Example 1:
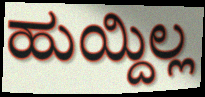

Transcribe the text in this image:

ಹುಯ್ದಿಲ್ಲ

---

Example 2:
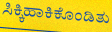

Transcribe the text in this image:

ಸಿಕ್ಕಿಹಾಕಿಕೊಂಡಿತು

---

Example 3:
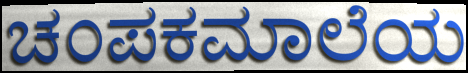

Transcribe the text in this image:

ಚಂಪಕಮಾಲೆಯ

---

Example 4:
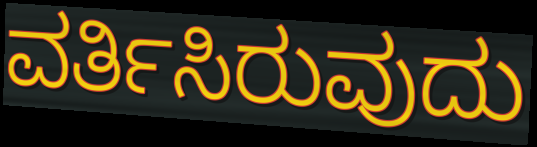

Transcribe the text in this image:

ವರ್ತಿಸಿರುವುದು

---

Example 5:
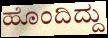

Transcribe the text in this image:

ಹೊಂದಿದ್ದು